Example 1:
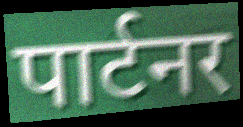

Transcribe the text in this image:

पार्टनर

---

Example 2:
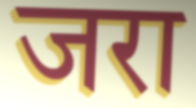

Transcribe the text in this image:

जरा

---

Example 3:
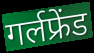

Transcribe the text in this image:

गर्लफ्रेंड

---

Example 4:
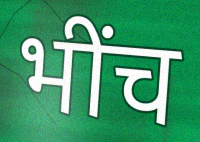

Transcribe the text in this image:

भींच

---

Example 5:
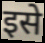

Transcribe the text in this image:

इसे